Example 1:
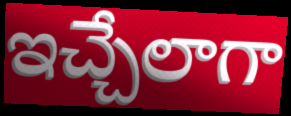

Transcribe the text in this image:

ఇచ్చేలాగా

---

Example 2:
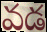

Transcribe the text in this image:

వడ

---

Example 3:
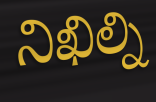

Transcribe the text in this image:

నిఖిల్ని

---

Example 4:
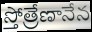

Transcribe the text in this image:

స్తోత్రేణానేన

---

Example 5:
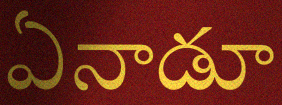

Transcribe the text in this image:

ఏనాడూ